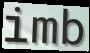
imb